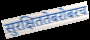
सुरक्षिततेबरोबरच